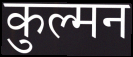
कुल्मन